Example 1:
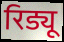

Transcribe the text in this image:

रिड्यू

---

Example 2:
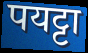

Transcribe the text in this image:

पयट्टा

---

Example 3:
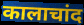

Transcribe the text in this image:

कालाचांद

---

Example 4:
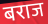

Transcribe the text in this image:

बराज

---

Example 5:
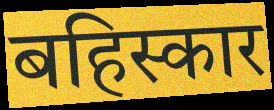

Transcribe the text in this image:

बहिस्कार